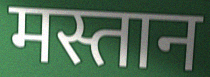
मस्तान